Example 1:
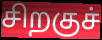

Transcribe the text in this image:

சிறகுச்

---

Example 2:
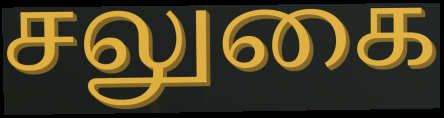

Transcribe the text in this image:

சலுகை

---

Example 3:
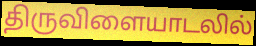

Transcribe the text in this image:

திருவிளையாடலில்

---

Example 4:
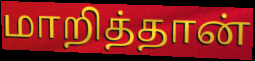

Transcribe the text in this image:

மாறித்தான்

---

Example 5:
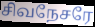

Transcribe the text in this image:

சிவநேசரே